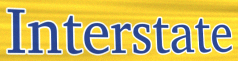
Interstate